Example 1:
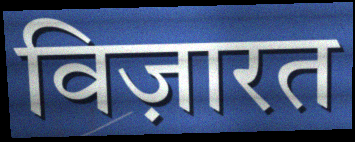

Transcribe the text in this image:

विज़ारत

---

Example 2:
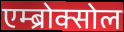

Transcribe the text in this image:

एम्ब्रोक्सोल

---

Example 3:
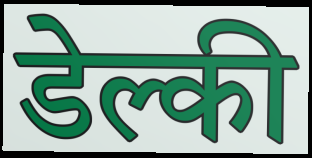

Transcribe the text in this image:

डेल्की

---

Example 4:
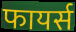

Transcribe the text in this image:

फायर्स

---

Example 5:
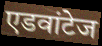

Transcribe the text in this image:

एडवांटेज